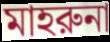
মাহরুনা